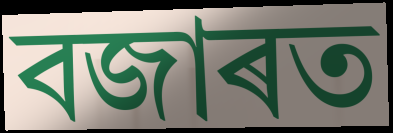
বজাৰত